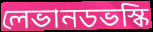
লেভানডভস্কি